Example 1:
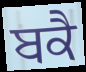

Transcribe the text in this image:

ਬਕੈ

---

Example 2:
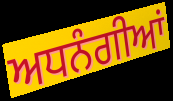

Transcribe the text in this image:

ਅਧਨੰਗੀਆਂ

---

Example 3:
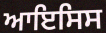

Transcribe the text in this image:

ਆਇਸਿਸ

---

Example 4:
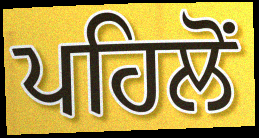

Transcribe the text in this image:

ਪਹਿਲੋਂ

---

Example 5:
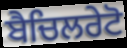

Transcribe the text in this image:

ਬੈਚਿਲਰੇਟੋ